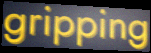
gripping